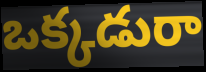
ఒక్కడురా